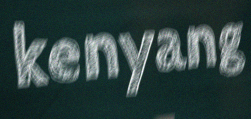
kenyang